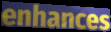
enhances